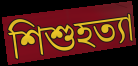
শিশুহত্যা